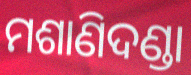
ମଶାଣିଦଣ୍ଡା